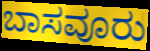
ಬಾಸವೂರು